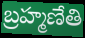
బ్రహ్మణేతి